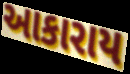
આકારાય